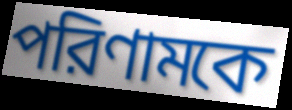
পরিণামকে